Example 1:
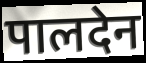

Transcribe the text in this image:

पालदेन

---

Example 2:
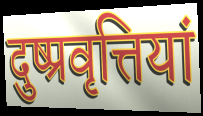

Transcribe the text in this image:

दुष्प्रवृत्तियां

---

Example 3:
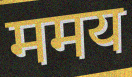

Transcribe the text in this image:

ममय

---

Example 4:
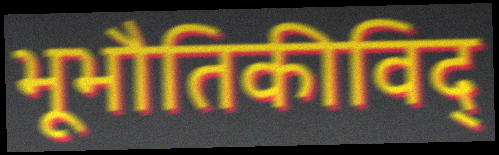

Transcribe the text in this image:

भूभौतिकीविद्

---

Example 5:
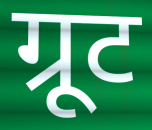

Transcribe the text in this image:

ग्रूट